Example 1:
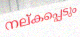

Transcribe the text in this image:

നല്കപ്പെടും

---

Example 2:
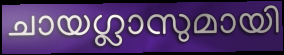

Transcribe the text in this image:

ചായഗ്ലാസുമായി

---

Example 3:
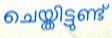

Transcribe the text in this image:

ചെയ്തിട്ടുണ്ട്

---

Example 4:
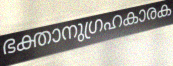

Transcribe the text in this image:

ഭക്താനുഗ്രഹകാരക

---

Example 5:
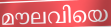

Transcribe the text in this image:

മൗലവിയെ